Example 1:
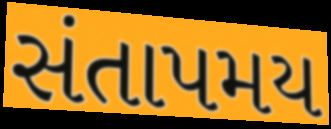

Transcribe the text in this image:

સંતાપમય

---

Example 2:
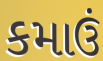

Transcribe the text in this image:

કમાઉં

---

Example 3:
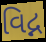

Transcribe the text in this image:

વિદ્ન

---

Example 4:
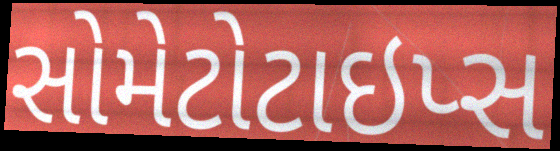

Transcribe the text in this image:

સોમેટોટાઇપ્સ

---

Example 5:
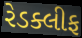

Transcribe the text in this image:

રેડક્લીફ